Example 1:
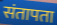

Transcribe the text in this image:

संतापता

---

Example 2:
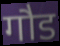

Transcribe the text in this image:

गौड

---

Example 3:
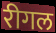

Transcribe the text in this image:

रीगल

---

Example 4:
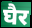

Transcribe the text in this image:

घैर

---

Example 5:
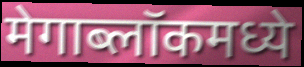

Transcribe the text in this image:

मेगाब्लॉकमध्ये